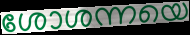
ശോശന്നയെ